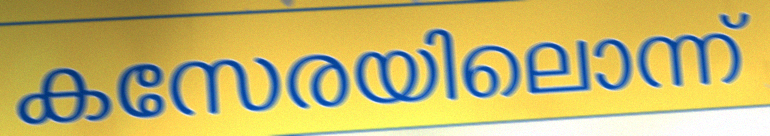
കസേരയിലൊന്ന്